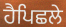
ਹੈਪਿਛਲੇ